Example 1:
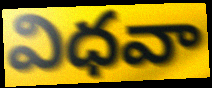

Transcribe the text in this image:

విధవా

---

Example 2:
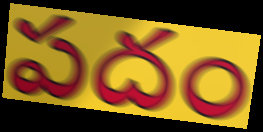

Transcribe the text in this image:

పదం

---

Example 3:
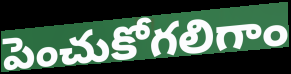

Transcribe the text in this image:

పెంచుకోగలిగాం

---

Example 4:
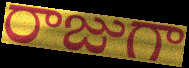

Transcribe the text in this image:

రాజుగా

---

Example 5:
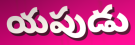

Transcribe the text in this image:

యపుడు